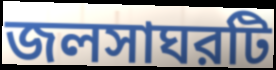
জলসাঘরটি